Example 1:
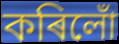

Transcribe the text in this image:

কৰিলোঁ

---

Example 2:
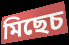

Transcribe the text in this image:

মিছেচ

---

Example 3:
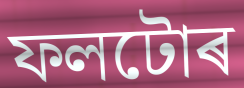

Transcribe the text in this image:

ফলটোৰ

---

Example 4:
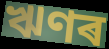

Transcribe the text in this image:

ঋণৰ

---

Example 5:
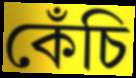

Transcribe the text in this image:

কেঁচি